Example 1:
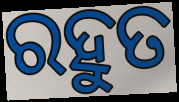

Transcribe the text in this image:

ରହୁତ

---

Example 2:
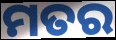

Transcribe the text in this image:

ମତର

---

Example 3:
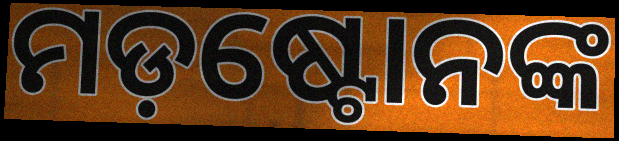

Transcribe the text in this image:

ମଡ଼ଷ୍ଟୋନଙ୍କ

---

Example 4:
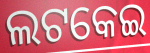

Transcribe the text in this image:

ଲଟକେଇ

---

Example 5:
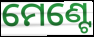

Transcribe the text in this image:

ମେଣ୍ଟେ